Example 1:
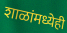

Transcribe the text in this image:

शाळांमध्येही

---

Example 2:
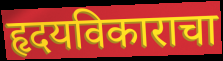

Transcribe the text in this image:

हृदयविकाराचा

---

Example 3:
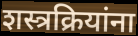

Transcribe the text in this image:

शस्त्रक्रियांना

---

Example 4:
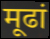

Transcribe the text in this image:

मूढां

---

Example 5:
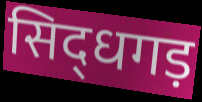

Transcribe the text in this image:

सिद्धगड़